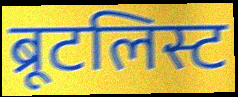
ब्रूटलिस्ट